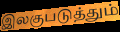
இலகுபடுத்தும்